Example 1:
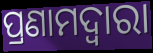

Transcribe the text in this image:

ପ୍ରଣାମଦ୍ୱାରା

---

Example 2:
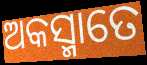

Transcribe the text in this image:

ଅକସ୍ମାତେ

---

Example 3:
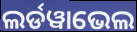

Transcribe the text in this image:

ଲର୍ଡୱାଭେଲ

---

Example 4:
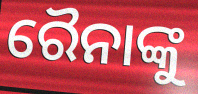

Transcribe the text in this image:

ରୈନାଙ୍କୁ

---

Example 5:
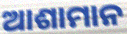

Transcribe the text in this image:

ଆଶାମାନ